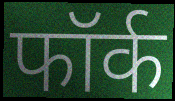
फॉर्क